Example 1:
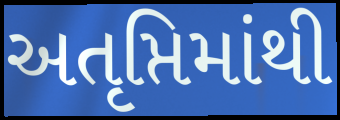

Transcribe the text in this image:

અતૃપ્તિમાંથી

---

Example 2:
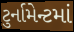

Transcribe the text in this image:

ટુર્નામેન્ટમાં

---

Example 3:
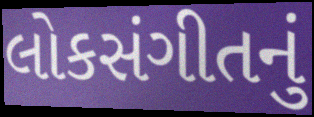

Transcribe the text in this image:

લોકસંગીતનું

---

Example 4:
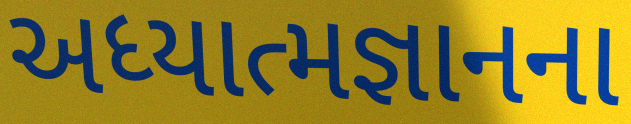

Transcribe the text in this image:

અધ્યાત્મજ્ઞાનના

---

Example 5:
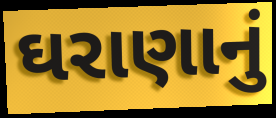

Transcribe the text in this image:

ઘરાણાનું